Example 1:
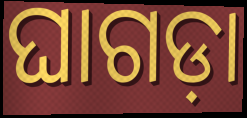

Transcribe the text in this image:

ଘାଗଡ଼ା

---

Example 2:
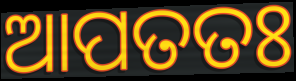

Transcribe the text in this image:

ଆପତତଃ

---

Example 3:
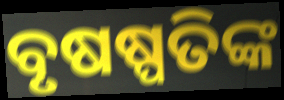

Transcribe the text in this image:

ବୃଷଷ୍ପତିଙ୍କ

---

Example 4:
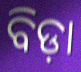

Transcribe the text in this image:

ବିଡ଼ା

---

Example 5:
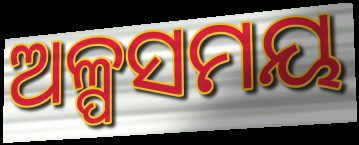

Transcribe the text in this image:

ଅଳ୍ପସମୟ